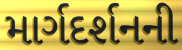
માર્ગદર્શનની